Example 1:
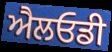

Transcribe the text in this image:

ਐਲਓਡੀ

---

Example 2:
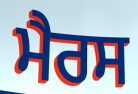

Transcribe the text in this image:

ਮੈਰਸ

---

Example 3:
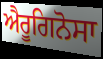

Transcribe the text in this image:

ਐਰੂਗਿਨੋਸਾ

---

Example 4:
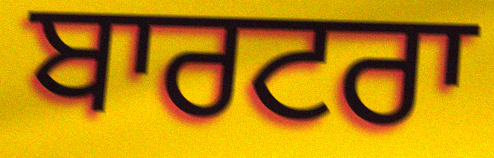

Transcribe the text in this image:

ਬਾਰਟਰਾ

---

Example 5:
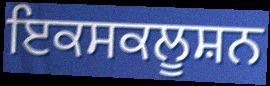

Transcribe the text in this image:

ਇਕਸਕਲੂਸ਼ਨ